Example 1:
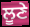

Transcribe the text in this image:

ਲੂਣੇ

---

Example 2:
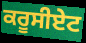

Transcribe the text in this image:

ਕਰੂਸੀਏਟ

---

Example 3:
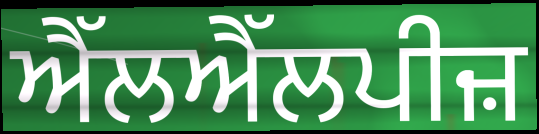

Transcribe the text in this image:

ਐੱਲਐੱਲਪੀਜ਼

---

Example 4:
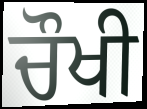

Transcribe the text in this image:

ਚੌਖੀ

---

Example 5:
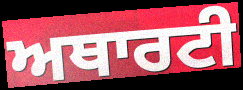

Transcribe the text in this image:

ਅਥਾਰਟੀ